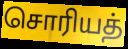
சொரியத்